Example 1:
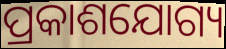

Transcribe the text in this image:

ପ୍ରକାଶଯୋଗ୍ୟ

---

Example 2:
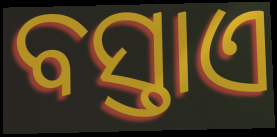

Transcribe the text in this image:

ବସ୍ତାଏ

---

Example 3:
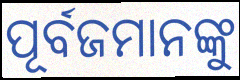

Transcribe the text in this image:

ପୂର୍ବଜମାନଙ୍କୁ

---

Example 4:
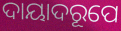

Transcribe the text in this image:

ଦାୟାଦରୂପେ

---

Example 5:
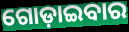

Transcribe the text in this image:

ଗୋଡ଼ାଇବାର